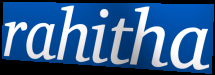
rahitha